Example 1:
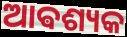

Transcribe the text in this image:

ଆଵଶ୍ୟକ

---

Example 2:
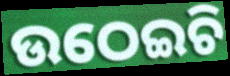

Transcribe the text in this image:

ଉଠେଇଚି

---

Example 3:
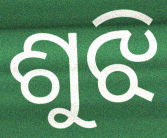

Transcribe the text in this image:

ଶୁଝି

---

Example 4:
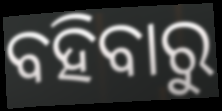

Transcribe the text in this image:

ବହିବାରୁ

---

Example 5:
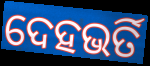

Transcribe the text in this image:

ଦେହଭର୍ତି